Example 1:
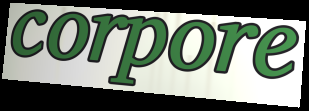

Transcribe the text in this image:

corpore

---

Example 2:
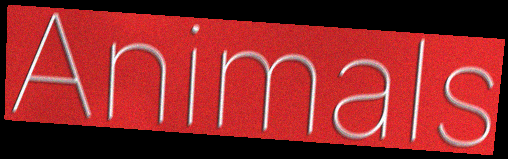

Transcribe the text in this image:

Animals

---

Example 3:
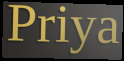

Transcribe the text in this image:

Priya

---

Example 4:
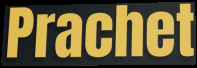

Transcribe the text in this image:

Prachet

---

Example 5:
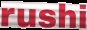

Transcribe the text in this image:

rushi